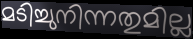
മടിച്ചുനിന്നതുമില്ല